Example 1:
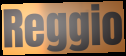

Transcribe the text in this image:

Reggio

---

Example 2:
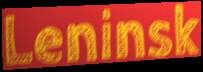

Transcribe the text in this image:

Leninsk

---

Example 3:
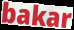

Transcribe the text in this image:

bakar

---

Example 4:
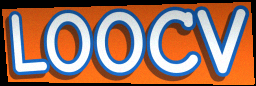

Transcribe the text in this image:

LOOCV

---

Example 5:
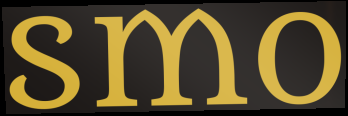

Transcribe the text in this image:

smo